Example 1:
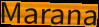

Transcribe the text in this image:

Marana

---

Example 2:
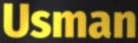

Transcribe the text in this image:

Usman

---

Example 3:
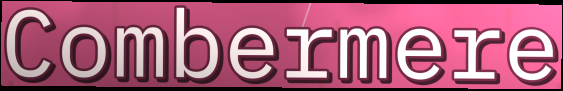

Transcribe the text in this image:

Combermere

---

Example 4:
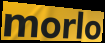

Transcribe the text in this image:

morlo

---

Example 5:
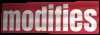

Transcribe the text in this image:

modifies